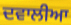
ਦਵਾਲੀਆ